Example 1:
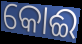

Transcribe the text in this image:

କୋଈ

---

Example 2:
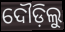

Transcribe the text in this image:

ଦୌଡ଼ିଲୁ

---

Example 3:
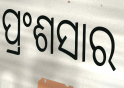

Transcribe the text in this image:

ପ୍ରଂଶସାର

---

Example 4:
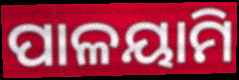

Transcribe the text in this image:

ପାଳୟାମି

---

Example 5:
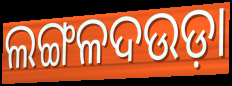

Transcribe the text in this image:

ଲଙ୍ଗଳଦଉଡ଼ା